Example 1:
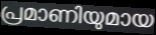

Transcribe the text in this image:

പ്രമാണിയുമായ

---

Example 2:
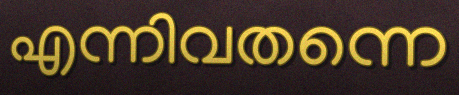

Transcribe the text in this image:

എന്നിവതന്നെ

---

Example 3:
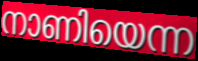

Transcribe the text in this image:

നാണിയെന്ന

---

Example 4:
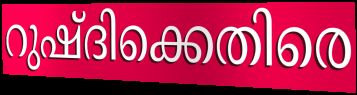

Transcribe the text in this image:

റുഷ്ദിക്കെതിരെ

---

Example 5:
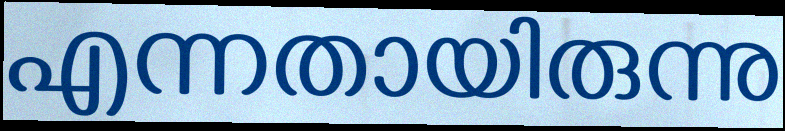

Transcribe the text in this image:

എന്നതായിരുന്നു